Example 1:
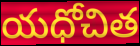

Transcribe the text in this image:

యధోచిత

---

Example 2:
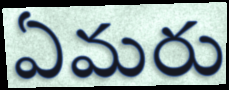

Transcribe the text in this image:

ఏమరు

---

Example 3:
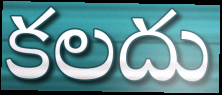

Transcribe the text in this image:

కలదు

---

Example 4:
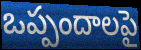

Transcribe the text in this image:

ఒప్పందాలపై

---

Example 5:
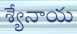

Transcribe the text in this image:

శ్యేనాయ